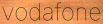
vodafone